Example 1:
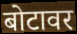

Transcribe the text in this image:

बोटावर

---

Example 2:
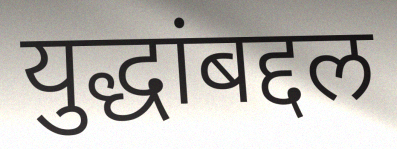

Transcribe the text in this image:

युद्धांबद्दल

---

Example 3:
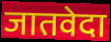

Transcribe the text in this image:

जातवेदा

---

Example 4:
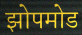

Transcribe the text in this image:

झोपमोड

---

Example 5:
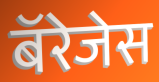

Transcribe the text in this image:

बॅरेजेस